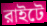
রাইটে